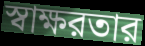
স্বাক্ষরতার